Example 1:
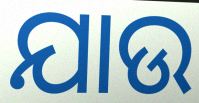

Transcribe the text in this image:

ଯାଉ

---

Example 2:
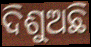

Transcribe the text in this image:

ଦିଶୁଅଛି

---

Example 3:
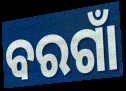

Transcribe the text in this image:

ବରଗାଁ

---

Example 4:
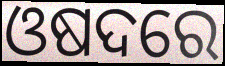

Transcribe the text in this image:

ଓଷଦରେ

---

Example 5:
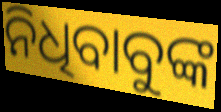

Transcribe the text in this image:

ନିଧିବାବୁଙ୍କ